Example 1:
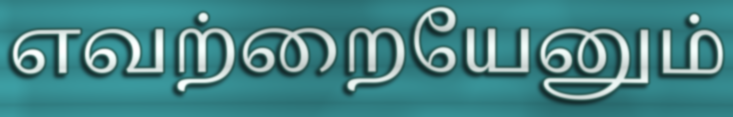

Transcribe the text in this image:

எவற்றையேனும்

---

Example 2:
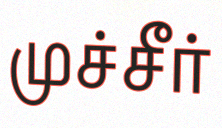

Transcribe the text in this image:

முச்சீர்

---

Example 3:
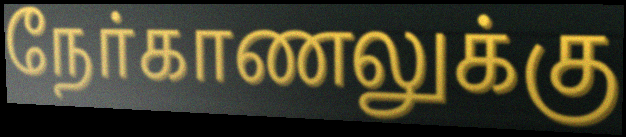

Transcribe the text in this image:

நேர்காணலுக்கு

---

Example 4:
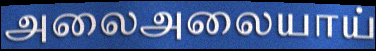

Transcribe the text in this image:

அலைஅலையாய்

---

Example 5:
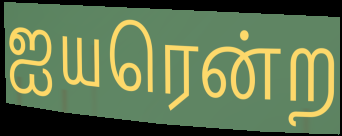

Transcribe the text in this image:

ஐயரென்ற